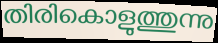
തിരികൊളുത്തുന്നു